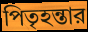
পিতৃহন্তার